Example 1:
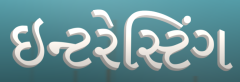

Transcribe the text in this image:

ઇન્ટરેસ્ટિંગ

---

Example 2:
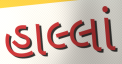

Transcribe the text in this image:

હાલ્લાં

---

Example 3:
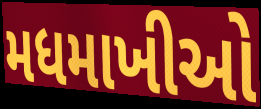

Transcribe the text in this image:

મધમાખીઓ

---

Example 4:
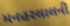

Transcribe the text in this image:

મનહરલાલની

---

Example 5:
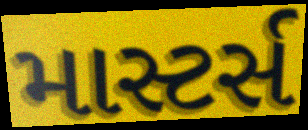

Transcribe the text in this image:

માસ્ટર્સ